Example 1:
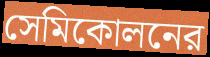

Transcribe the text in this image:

সেমিকোলনের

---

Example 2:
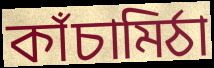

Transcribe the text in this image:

কাঁচামিঠা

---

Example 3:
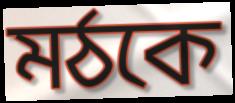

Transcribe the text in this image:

মঠকে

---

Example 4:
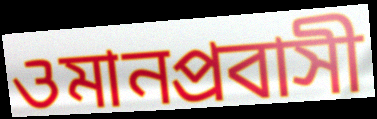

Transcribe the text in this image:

ওমানপ্রবাসী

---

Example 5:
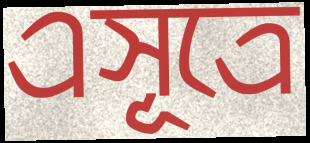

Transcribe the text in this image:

এসূত্রে